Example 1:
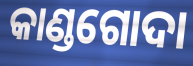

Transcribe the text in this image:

କାଣ୍ଡଗୋଦା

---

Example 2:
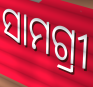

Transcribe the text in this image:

ସାମଗ୍ରୀ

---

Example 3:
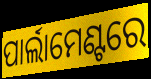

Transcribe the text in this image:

ପାର୍ଲାମେଣ୍ଟରେ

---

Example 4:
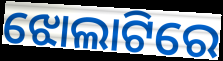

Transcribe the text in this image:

ଝୋଲାଟିରେ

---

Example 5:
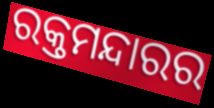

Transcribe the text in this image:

ରକ୍ତମନ୍ଦାରର